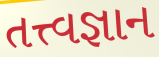
તત્ત્વજ્ઞાન